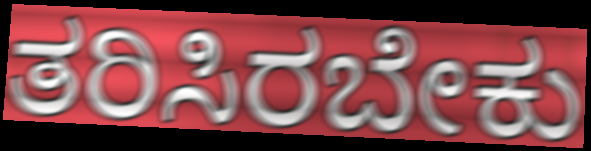
ತರಿಸಿರಬೇಕು